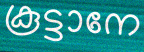
കൂട്ടാനേ